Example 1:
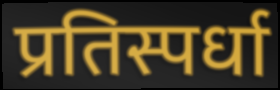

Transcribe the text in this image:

प्रतिस्पर्धा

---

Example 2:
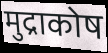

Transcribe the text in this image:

मुद्राकोष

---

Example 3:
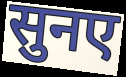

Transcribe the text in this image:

सुनए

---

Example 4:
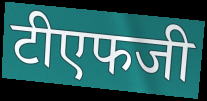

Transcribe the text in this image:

टीएफजी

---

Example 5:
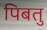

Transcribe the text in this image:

पिबतु